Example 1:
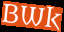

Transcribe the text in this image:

BWk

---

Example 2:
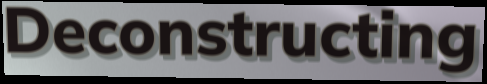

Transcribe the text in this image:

Deconstructing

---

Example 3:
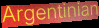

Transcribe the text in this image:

Argentinian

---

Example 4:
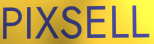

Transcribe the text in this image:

PIXSELL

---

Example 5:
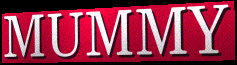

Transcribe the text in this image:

MUMMY